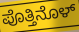
ಪೊತ್ತಿನೊಳ್